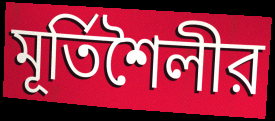
মূর্তিশৈলীর